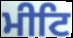
ਮੀਟਿ